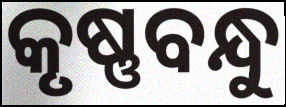
କୃଷ୍ଣବନ୍ଧୁ